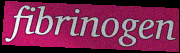
fibrinogen